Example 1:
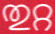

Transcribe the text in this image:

തുറ്റ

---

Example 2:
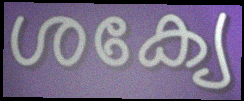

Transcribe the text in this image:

ശക്യേ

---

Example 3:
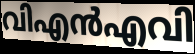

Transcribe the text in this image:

വിഎൻഎവി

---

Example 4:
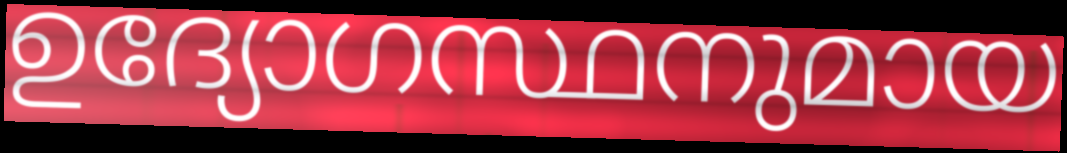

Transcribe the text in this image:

ഉദ്യോഗസ്ഥനുമായ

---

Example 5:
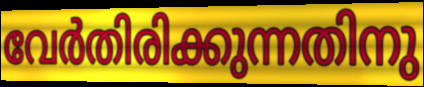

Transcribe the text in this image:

വേർതിരിക്കുന്നതിനു